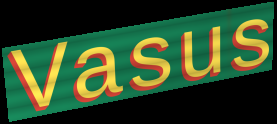
Vasus